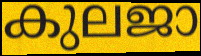
കുലജാ